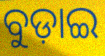
ବୁଡ଼ାଇ